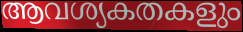
ആവശ്യകതകളും